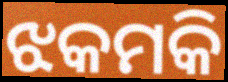
ଝକମକି